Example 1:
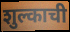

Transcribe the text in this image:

शुल्काची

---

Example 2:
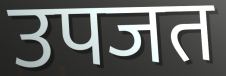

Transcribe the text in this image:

उपजत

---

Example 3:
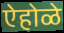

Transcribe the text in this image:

ऐहोळे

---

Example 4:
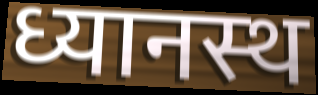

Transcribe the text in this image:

ध्यानस्थ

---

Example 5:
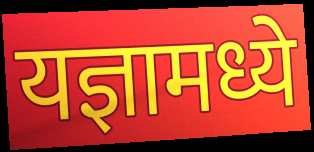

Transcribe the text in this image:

यज्ञामध्ये